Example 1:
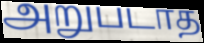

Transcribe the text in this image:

அறுபடாத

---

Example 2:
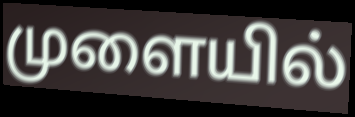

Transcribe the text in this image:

முளையில்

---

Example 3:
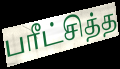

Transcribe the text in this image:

பரீட்சித்த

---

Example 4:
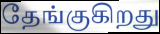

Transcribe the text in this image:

தேங்குகிறது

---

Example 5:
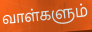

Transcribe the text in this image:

வாள்களும்